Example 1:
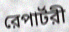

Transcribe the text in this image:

রেপার্টরী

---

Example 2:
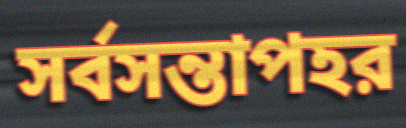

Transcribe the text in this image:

সর্বসন্তাপহর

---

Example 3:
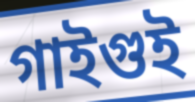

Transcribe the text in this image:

গাইগুই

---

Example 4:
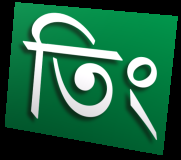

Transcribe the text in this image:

তিং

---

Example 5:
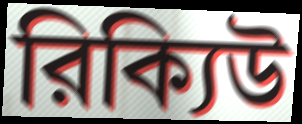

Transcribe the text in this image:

রিক্যিউ